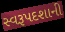
સ્વરૂપદશાની